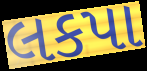
લકપા